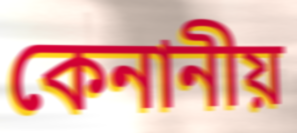
কেনানীয়